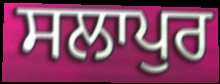
ਸਲਾਪੁਰ